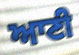
ਆਣੀ